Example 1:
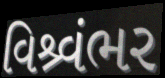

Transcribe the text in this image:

વિશ્ર્વંભર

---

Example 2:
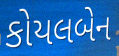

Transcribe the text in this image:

કોયલબેન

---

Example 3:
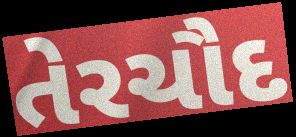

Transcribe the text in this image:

તેરચૌદ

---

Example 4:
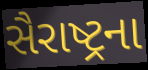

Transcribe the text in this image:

સૈરાષ્ટ્રના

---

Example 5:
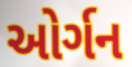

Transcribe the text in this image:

ઓર્ગન